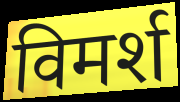
विमर्श